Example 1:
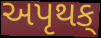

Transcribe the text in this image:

અપૃથક્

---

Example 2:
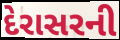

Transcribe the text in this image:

દેરાસરની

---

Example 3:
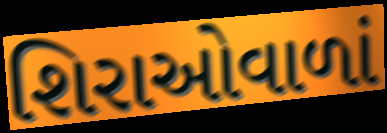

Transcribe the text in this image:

શિરાઓવાળાં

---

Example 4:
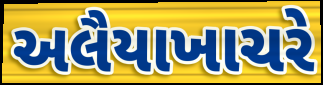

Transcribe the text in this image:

અલૈયાખાચરે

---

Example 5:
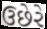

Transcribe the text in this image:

ઉછેરે